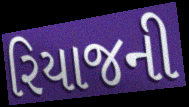
રિયાજની